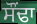
ਸੌਂਢਾ